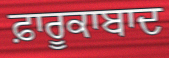
ਫ਼ਾਰੂਕਾਬਾਦ